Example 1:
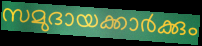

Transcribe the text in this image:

സമുദായക്കാർക്കും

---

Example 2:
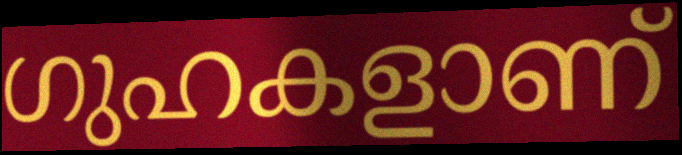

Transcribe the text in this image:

ഗുഹകളാണ്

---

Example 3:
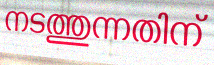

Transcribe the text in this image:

നടത്തുന്നതിന്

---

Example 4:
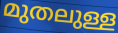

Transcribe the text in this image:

മുതലുള്ള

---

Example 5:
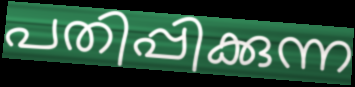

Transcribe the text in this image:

പതിപ്പിക്കുന്ന